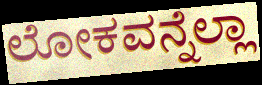
ಲೋಕವನ್ನೆಲ್ಲಾ